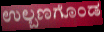
ಉಲ್ಬಣಗೊಂಡ